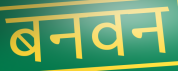
बनवन